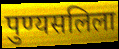
पुण्यसलिला